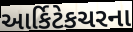
આર્કિટેકચરના